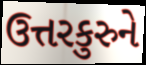
ઉત્તરકુરુને